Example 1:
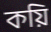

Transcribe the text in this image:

কয়ি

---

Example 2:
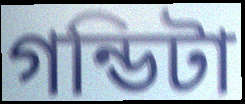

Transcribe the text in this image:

গন্ডিটা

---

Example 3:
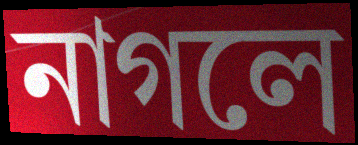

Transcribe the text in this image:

নাগলে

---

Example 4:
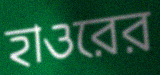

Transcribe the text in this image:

হাওরের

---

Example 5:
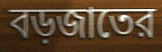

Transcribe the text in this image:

বড়জাতের